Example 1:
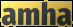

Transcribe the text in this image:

amha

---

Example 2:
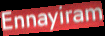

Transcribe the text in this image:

Ennayiram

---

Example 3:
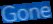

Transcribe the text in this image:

Gone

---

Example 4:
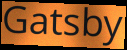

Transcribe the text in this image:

Gatsby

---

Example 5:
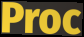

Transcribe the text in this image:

Proc